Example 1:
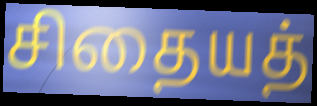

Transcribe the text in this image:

சிதையத்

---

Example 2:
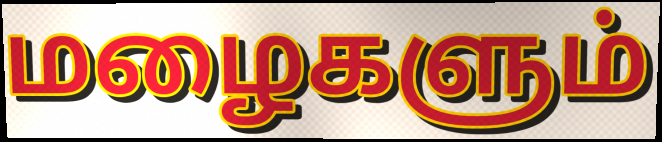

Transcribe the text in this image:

மழைகளும்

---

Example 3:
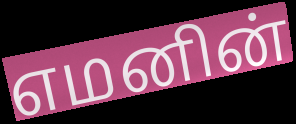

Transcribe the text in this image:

எமனின்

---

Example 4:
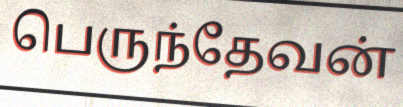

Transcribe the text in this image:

பெருந்தேவன்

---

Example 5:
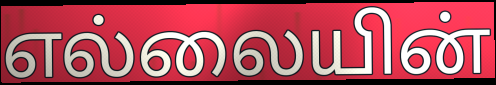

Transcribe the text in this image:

எல்லையின்